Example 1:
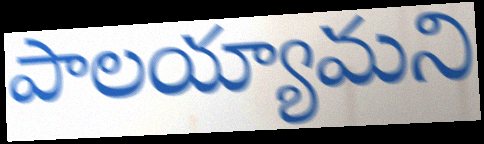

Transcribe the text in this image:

పాలయ్యామని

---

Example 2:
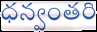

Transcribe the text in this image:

ధన్వంతరి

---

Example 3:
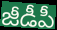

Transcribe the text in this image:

జీడీపీ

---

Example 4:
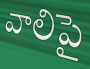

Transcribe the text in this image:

వాలిపై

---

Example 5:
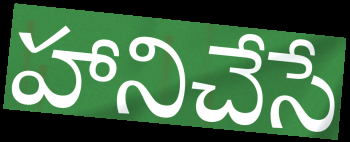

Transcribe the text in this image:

హానిచేసే